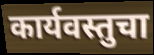
कार्यवस्तुचा